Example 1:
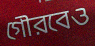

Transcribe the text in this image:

গৌরবেও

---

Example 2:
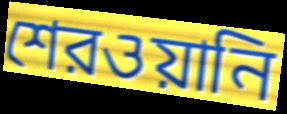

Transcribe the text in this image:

শেরওয়ানি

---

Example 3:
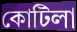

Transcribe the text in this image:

কোটিলা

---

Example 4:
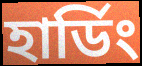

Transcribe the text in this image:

হার্ডিং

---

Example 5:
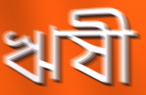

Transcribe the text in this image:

ঋষী